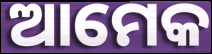
ଆମେକ